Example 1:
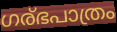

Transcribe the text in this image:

ഗര്ഭപാത്രം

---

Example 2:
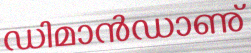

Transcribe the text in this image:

ഡിമാൻഡാണു്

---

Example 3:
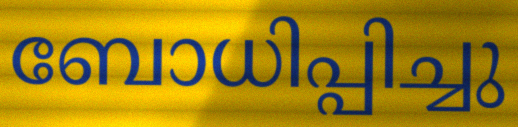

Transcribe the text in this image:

ബോധിപ്പിച്ചു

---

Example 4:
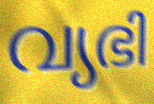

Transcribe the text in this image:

വ്യഭി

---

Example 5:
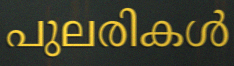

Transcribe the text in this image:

പുലരികൾ